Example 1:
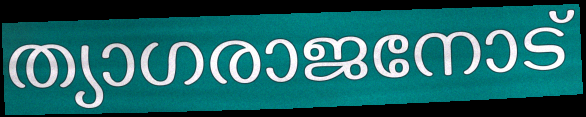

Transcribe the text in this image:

ത്യാഗരാജനോട്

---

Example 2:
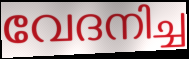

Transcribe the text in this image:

വേദനിച്ച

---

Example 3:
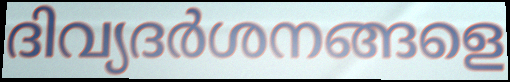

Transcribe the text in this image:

ദിവ്യദർശനങ്ങളെ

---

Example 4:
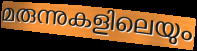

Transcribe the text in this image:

മരുന്നുകളിലെയും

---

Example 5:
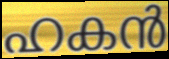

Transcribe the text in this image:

ഹകൻ